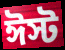
ঈস্ট